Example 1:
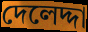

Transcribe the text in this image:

দেলেদ্দা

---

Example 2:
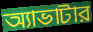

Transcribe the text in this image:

অ্যাভাটার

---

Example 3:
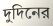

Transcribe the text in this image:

দুদিনের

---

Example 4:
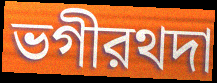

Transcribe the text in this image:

ভগীরথদা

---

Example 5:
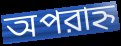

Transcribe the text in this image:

অপরাহ্ন